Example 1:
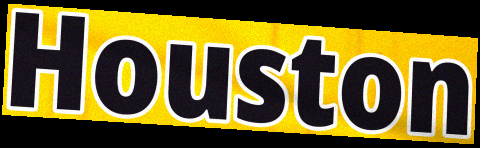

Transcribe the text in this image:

Houston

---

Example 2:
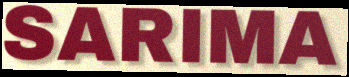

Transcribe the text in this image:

SARIMA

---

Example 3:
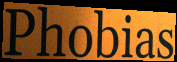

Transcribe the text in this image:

Phobias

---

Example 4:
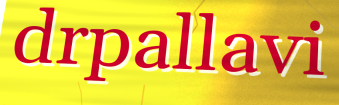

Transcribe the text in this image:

drpallavi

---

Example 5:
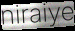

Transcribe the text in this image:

niraiye